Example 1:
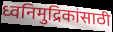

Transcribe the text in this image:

ध्वनिमुद्रिकांसाठी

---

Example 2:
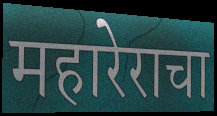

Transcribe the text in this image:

महारेराचा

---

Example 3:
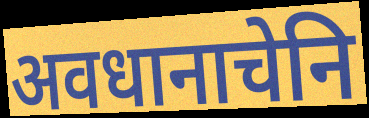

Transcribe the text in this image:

अवधानाचेनि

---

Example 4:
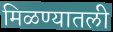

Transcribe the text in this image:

मिळण्यातली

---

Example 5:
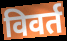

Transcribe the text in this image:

विवर्त